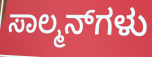
ಸಾಲ್ಮನ್‌ಗಳು